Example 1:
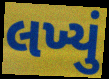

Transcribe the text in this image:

લખ્યું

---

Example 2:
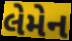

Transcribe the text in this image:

લેમેન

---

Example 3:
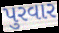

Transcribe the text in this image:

પુરવાર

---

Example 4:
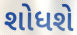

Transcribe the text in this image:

શોધશે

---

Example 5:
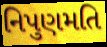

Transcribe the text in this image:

નિપુણમતિ